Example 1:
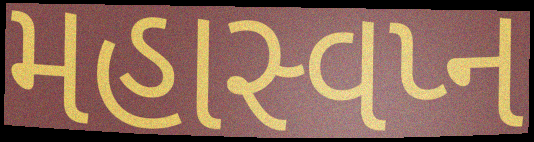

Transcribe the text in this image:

મહાસ્વપ્ન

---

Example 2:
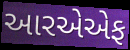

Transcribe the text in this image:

આરએએફ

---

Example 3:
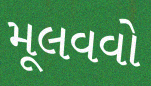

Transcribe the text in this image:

મૂલવવો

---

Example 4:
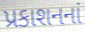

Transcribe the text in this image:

પ્રકાશનનાં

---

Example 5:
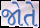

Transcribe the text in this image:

જોતે